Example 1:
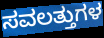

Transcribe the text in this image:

ಸವಲತ್ತುಗಳ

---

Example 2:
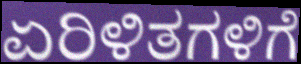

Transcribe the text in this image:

ಏರಿಳಿತಗಳಿಗೆ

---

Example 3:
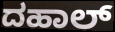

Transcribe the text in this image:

ದಹಾಲ್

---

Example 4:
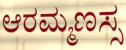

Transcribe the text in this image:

ಆರಮ್ಮಣಸ್ಸ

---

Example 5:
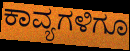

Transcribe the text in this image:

ಕಾವ್ಯಗಳಿಗೂ